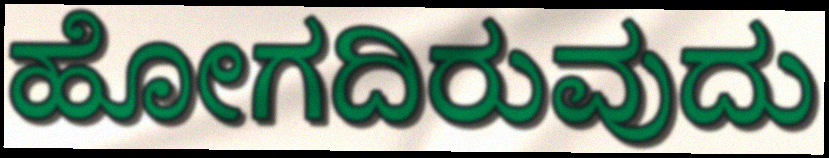
ಹೋಗದಿರುವುದು